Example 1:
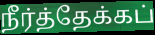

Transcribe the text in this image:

நீர்த்தேக்கப்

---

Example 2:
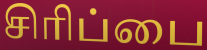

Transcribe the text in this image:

சிரிப்பை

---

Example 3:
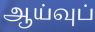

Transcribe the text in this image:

ஆய்வுப்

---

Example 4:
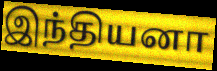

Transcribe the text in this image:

இந்தியனா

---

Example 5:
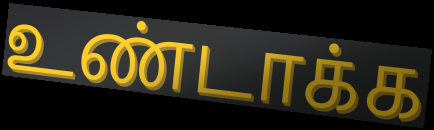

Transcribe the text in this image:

உண்டாக்க